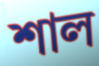
শাল